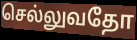
செல்லுவதோ